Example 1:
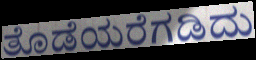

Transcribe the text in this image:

ತೊಡೆಯರೆಗಡಿದು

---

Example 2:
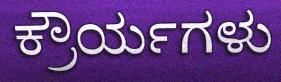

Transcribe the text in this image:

ಕ್ರೌರ್ಯಗಳು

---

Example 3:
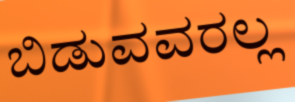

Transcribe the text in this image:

ಬಿಡುವವರಲ್ಲ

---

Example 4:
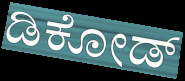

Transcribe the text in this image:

ಡಿಕೋಡ್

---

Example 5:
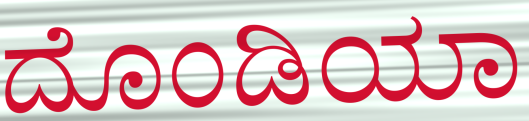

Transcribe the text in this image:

ದೊಂಡಿಯಾ